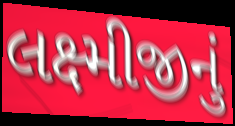
લક્ષ્મીજીનું